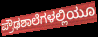
ಪ್ರೌಢಶಾಲೆಗಳಲ್ಲಿಯೂ